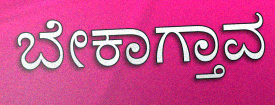
ಬೇಕಾಗ್ತಾವ